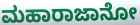
ಮಹಾರಾಜಾನೋ